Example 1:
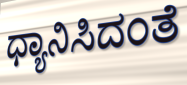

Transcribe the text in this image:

ಧ್ಯಾನಿಸಿದಂತೆ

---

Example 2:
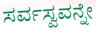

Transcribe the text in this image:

ಸರ್ವಸ್ವವನ್ನೇ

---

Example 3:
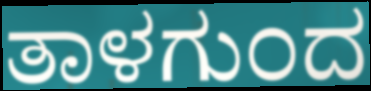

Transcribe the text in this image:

ತಾಳಗುಂದ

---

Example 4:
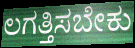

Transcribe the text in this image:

ಲಗತ್ತಿಸಬೇಕು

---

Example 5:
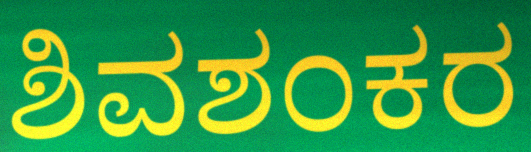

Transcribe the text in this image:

ಶಿವಶಂಕರ